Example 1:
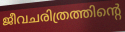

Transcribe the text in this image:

ജീവചരിത്രത്തിന്റെ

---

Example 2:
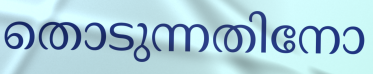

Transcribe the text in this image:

തൊടുന്നതിനോ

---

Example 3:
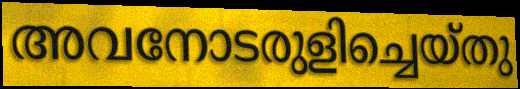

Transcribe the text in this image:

അവനോടരുളിച്ചെയ്തു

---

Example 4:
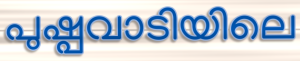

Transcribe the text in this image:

പുഷ്പവാടിയിലെ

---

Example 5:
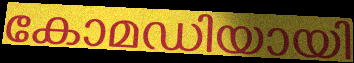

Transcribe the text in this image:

കോമഡിയായി